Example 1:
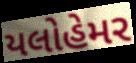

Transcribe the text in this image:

યલોહેમર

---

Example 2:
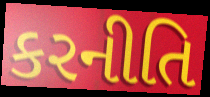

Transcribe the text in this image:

કરનીતિ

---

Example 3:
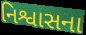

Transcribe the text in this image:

નિશ્વાસના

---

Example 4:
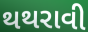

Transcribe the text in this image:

થથરાવી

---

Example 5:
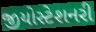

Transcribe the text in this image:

જીયોસ્ટેશનરી